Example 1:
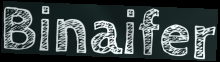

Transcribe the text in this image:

Binaifer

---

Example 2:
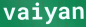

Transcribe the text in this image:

vaiyan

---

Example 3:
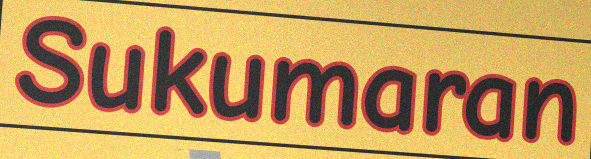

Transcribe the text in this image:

Sukumaran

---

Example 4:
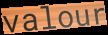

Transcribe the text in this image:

valour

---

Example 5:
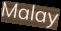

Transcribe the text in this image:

Malay